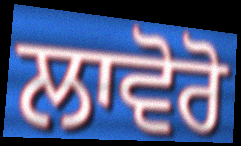
ਲਾਵੋਰੋ